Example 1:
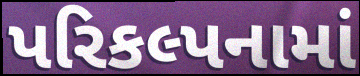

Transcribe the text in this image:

પરિકલ્પનામાં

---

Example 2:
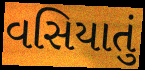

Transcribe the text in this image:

વસિયાતું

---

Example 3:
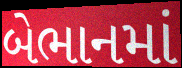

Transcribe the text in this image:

બેભાનમાં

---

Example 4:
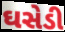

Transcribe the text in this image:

ઘસેડી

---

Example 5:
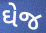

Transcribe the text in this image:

ઘેજ